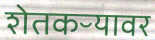
शेतकऱ्यावर